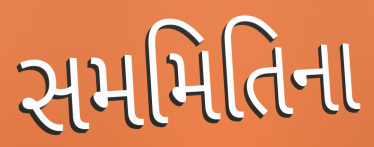
સમમિતિના